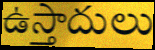
ఉస్తాదులు